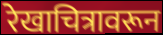
रेखाचित्रावरून